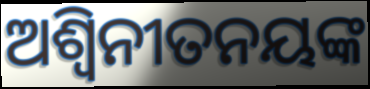
ଅଶ୍ୱିନୀତନୟଙ୍କ